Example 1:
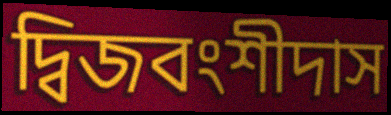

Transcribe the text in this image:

দ্বিজবংশীদাস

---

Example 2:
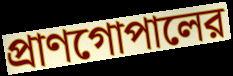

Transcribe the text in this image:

প্রাণগোপালের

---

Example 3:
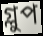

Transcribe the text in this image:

গ্লুপ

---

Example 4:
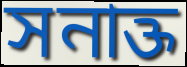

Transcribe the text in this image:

সনাক্ত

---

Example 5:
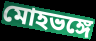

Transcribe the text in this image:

মোহভঙ্গে